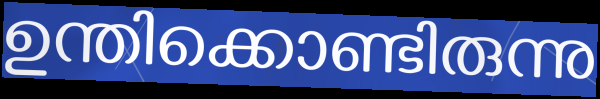
ഉന്തിക്കൊണ്ടിരുന്നു